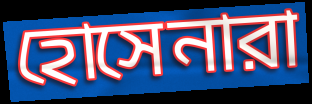
হোসেনারা